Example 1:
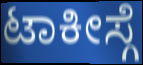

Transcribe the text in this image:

ಟಾಕೀಸ್ಗೆ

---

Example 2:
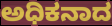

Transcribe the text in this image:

ಅಧಿಕನಾದ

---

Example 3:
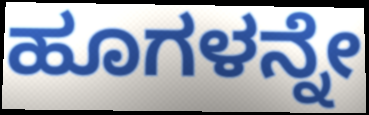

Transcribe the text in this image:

ಹೂಗಳನ್ನೇ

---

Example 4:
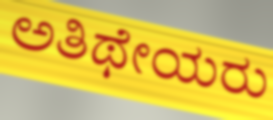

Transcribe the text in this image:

ಅತಿಥೇಯರು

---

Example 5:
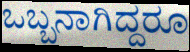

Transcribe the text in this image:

ಒಬ್ಬನಾಗಿದ್ದರೂ